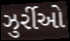
ઝુર્રીઓ